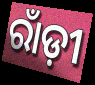
ରାଁଡ଼ୀ